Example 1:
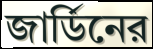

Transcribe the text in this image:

জার্ডিনের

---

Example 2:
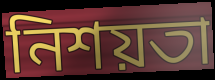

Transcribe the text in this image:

নিশয়তা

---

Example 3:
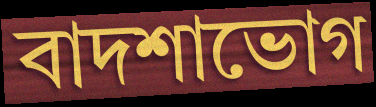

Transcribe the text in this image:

বাদশাভোগ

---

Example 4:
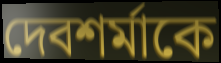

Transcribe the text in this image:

দেবশর্মাকে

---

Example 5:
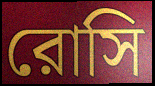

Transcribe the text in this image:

রোসি